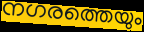
നഗരത്തെയും